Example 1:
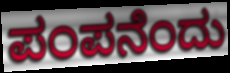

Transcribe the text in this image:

ಪಂಪನೆಂದು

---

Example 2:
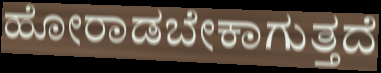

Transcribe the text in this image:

ಹೋರಾಡಬೇಕಾಗುತ್ತದೆ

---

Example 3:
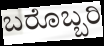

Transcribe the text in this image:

ಬರೊಬ್ಬರಿ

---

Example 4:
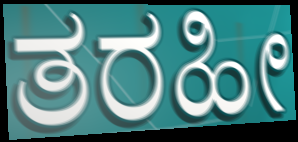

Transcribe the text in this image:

ತರಹೀ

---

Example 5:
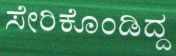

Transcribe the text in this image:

ಸೇರಿಕೊಂಡಿದ್ದ